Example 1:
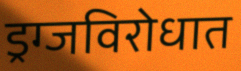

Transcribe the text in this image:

ड्रग्जविरोधात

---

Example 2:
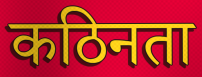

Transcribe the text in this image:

कठिनता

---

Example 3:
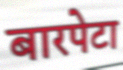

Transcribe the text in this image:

बारपेटा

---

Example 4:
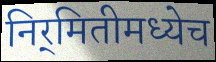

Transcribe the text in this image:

निर्मितीमध्येच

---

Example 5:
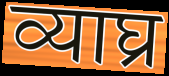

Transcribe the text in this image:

व्याघ्र